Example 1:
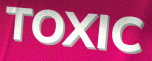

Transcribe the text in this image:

TOXIC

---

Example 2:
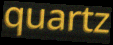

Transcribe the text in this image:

quartz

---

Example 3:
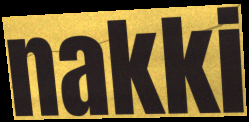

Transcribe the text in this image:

nakki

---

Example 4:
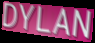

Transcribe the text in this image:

DYLAN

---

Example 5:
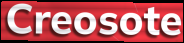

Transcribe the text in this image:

Creosote